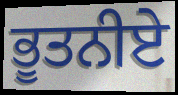
ਭੂਤਨੀਏ